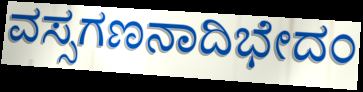
ವಸ್ಸಗಣನಾದಿಭೇದಂ